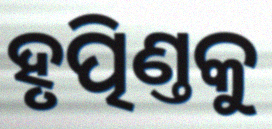
ହୃତ୍ପିଣ୍ତକୁ